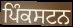
ਪਿੰਕਸਟਨ